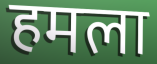
हमला